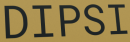
DIPSI